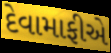
દેવામાફીએ